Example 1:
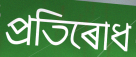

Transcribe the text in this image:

প্ৰতিৰোধ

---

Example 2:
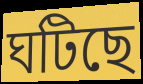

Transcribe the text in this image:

ঘটিছে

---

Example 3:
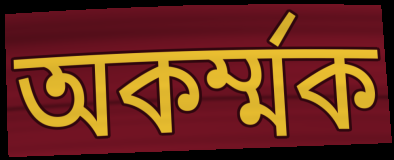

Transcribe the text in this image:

অকৰ্ম্মক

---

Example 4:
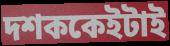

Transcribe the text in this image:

দশককেইটাই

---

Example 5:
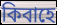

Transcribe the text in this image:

কিবাহে